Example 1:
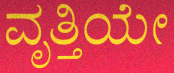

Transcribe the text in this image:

ವೃತ್ತಿಯೇ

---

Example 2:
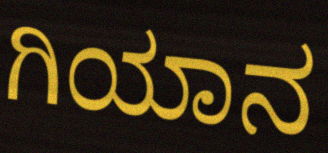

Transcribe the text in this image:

ಗಿಯಾನ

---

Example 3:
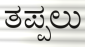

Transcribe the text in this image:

ತಪ್ಪಲು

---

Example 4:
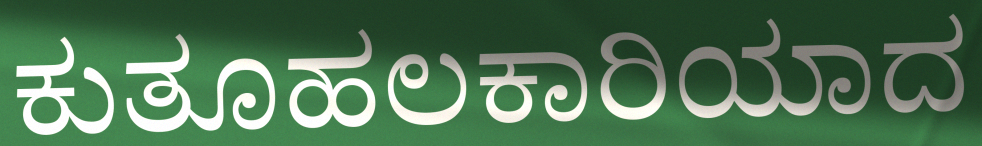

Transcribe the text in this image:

ಕುತೂಹಲಕಾರಿಯಾದ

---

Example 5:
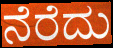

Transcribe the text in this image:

ನೆರೆದು